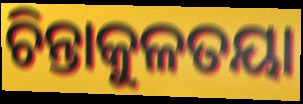
ଚିନ୍ତାକୁଳତୟା